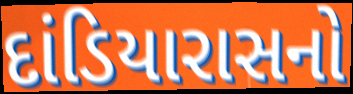
દાંડિયારાસનો